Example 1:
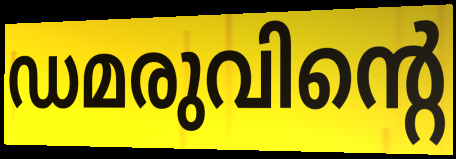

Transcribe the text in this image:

ഡമരുവിന്റെ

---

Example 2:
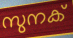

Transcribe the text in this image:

സുനക്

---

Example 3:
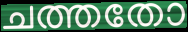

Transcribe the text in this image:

ചത്തതോ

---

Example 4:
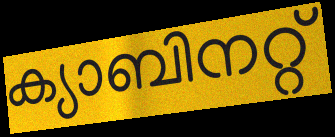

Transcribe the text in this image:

ക്യാബിനറ്റ്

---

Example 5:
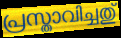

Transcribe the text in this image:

പ്രസ്താവിച്ചതു്